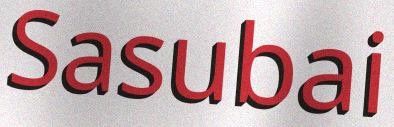
Sasubai